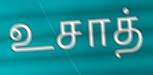
உசாத்